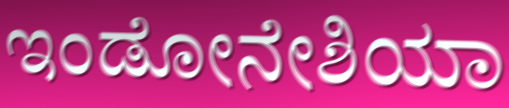
ಇಂಡೋನೇಶಿಯಾ